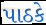
પાઠકે